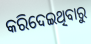
କରିଦେଇଥିବାରୁ